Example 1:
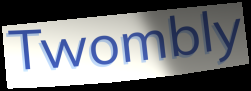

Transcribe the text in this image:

Twombly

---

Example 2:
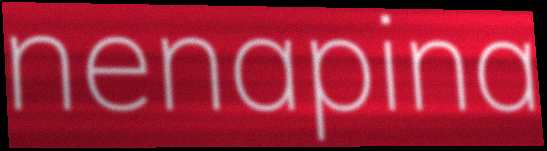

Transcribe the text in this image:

nenapina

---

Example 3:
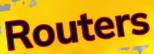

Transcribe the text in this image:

Routers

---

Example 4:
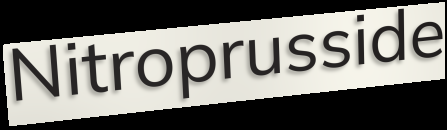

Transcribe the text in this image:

Nitroprusside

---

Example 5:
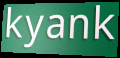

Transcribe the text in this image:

kyank